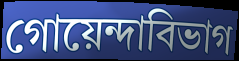
গোয়েন্দাবিভাগ